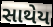
સાથેય